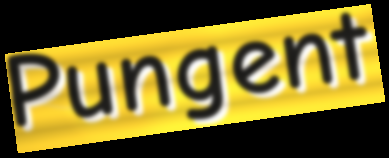
Pungent